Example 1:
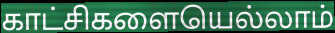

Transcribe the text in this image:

காட்சிகளையெல்லாம்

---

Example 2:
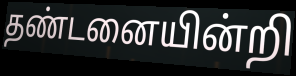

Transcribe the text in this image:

தண்டனையின்றி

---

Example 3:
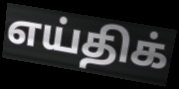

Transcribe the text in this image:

எய்திக்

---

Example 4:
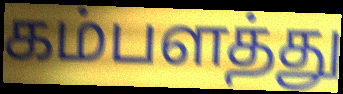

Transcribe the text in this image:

கம்பளத்து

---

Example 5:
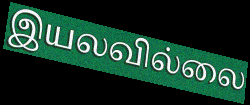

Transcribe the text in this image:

இயலவில்லை